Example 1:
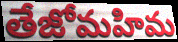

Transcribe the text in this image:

తేజోమహిమ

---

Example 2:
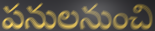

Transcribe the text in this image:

పనులనుంచి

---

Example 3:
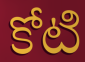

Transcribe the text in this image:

కోటి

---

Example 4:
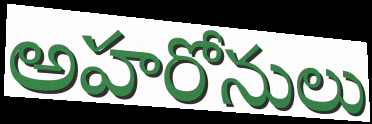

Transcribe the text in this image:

అహరోనులు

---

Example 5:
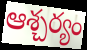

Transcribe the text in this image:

ఆశ్చర్యం